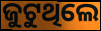
ଜୁଟୁଥିଲେ